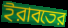
ইরাবতের